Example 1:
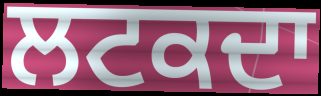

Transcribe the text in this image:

ਲਟਕਦਾ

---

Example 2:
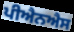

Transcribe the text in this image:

ਪੀਐਨਐਸ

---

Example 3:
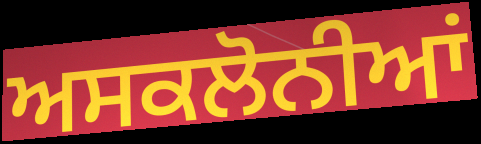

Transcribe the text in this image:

ਅਸਕਲੋਨੀਆਂ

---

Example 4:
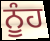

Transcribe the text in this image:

ਨੂੰਹ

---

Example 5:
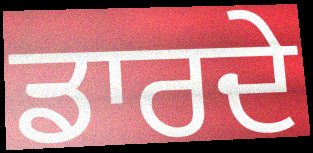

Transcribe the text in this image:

ਡਾਰਦੇ